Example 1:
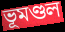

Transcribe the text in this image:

ভূমণ্ডল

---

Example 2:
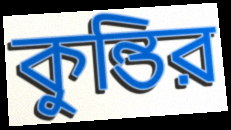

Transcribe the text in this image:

কুন্তির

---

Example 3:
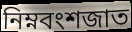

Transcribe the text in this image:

নিম্নবংশজাত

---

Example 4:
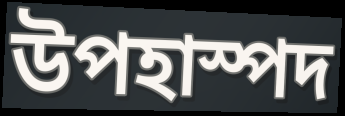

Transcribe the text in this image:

উপহাস্পদ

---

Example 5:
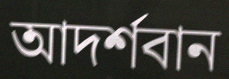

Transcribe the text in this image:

আদর্শবান